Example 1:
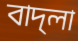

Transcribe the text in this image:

বাদ্‌লা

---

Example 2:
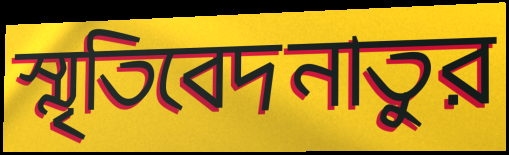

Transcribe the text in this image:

স্মৃতিবেদনাতুর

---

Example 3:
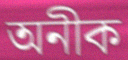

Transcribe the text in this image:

অনীক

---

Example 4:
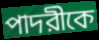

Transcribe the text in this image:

পাদরীকে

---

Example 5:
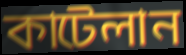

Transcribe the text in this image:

কাটেলান